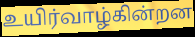
உயிர்வாழ்கின்றன